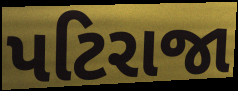
પટિરાજા